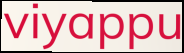
viyappu